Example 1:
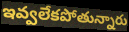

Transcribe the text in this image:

ఇవ్వలేకపోతున్నారు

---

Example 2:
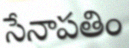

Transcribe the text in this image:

సేనాపతిం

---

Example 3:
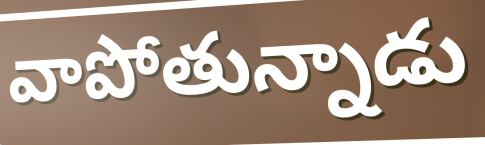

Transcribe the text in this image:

వాపోతున్నాడు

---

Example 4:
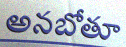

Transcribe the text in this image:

అనబోతూ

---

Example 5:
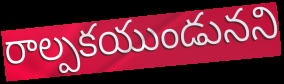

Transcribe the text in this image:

రాల్పకయుండునని